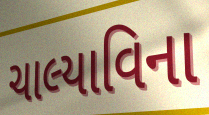
ચાલ્યાવિના